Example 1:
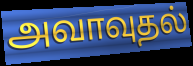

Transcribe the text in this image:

அவாவுதல்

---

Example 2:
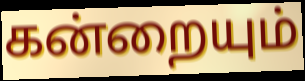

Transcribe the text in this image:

கன்றையும்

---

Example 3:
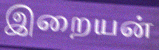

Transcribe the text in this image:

இறையன்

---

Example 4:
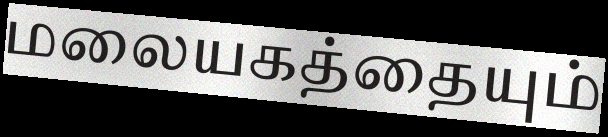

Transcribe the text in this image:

மலையகத்தையும்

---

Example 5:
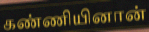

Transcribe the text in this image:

கண்ணியினான்